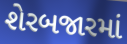
શેરબજારમાં